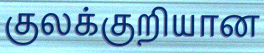
குலக்குறியான